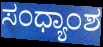
ಸಂಧ್ಯಾಂಶ